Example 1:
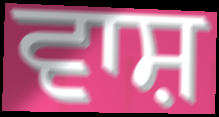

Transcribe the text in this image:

ਵਾਸ਼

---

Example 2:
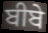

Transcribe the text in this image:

ਬੀਬੇ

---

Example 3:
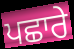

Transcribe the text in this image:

ਪਛਾਰੇ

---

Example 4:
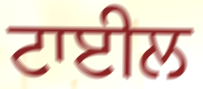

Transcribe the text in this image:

ਟਾਈਲ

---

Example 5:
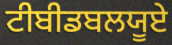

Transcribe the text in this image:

ਟੀਬੀਡਬਲਯੂਏ